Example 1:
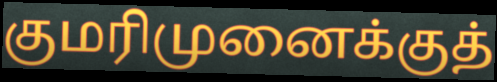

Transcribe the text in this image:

குமரிமுனைக்குத்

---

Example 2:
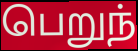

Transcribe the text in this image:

பெறுந்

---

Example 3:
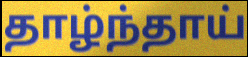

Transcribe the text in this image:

தாழ்ந்தாய்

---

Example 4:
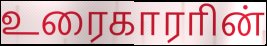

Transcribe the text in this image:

உரைகாரரின்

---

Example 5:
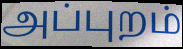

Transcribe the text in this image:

அப்புறம்